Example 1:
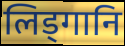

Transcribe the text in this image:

लिड्गानि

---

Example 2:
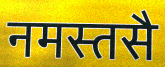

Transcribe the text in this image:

नमस्तसै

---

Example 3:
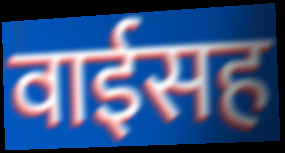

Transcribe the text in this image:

वाईसह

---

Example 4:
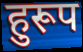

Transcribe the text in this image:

हुरूप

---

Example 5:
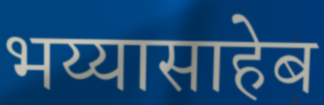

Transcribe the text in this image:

भय्यासाहेब